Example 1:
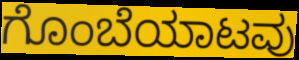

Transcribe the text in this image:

ಗೊಂಬೆಯಾಟವು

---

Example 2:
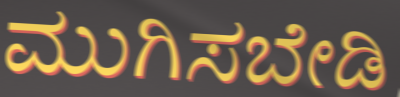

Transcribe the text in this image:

ಮುಗಿಸಬೇಡಿ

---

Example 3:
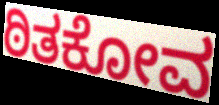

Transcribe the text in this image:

ಠಿತಕೋವ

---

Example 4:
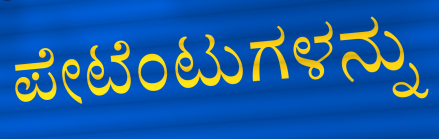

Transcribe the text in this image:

ಪೇಟೆಂಟುಗಳನ್ನು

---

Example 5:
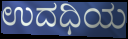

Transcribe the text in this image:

ಉದಧಿಯ